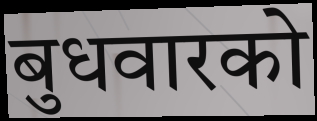
बुधवारको